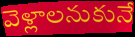
వెళ్లాలనుకునే